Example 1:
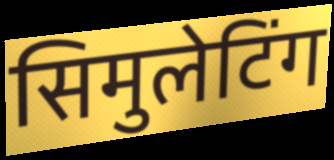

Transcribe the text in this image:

सिमुलेटिंग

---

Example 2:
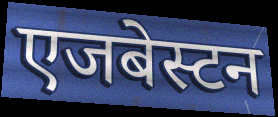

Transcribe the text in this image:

एजबेस्टन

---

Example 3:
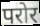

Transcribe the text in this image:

परोर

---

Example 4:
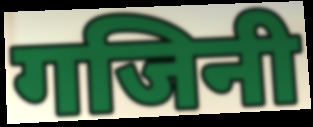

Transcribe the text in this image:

गजिनी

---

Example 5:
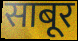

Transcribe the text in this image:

साबूर